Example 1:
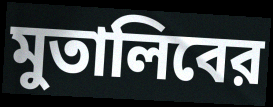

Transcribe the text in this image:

মুতালিবের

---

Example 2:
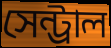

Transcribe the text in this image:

সেন্ট্রাল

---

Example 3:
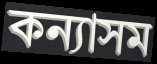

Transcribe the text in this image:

কন্যাসম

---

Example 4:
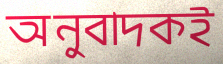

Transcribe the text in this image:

অনুবাদকই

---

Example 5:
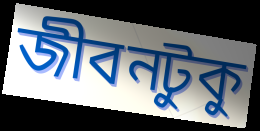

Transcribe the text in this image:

জীবনটুকু